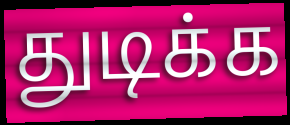
துடிக்க